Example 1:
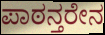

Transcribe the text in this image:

ಪಾಠನ್ತರೇನ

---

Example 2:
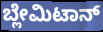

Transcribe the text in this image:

ಬ್ಲೇಮಿಟಾನ್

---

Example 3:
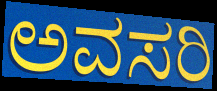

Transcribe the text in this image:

ಅವಸರಿ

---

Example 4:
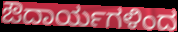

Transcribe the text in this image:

ಔದಾರ್ಯಗಳಿಂದ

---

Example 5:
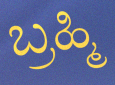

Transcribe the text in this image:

ಬ್ರಹ್ಮಿ